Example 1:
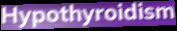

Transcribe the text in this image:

Hypothyroidism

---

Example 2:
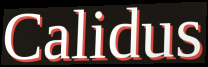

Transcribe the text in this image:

Calidus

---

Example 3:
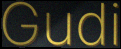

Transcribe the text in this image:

Gudi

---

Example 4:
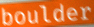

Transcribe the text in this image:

boulder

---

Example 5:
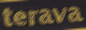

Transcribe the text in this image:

terava